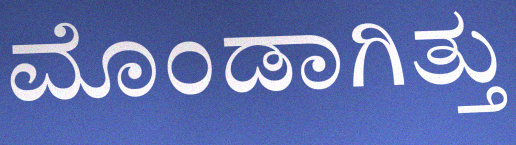
ಮೊಂಡಾಗಿತ್ತು